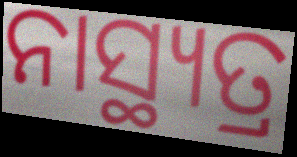
ନାସ୍ଥ୍ୟତ୍ର